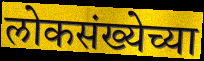
लोकसंख्येच्या